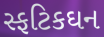
સ્ફટિકઘન